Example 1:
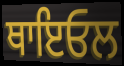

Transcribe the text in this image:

ਥਾਇਓਲ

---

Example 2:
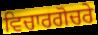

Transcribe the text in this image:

ਵਿਚਾਰਗੋਚਰੇ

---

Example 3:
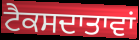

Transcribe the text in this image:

ਟੈਕਸਦਾਤਾਵਾਂ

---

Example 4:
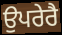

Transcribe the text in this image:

ਉਪਰੇਰੈ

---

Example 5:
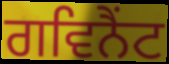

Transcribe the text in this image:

ਗਵਿਨੈਂਟ